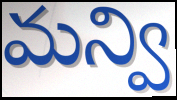
మన్వి